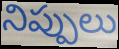
నిప్పులు